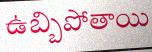
ఉబ్బిపోతాయి